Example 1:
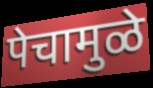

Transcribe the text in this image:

पेचामुळे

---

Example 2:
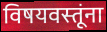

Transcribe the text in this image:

विषयवस्तूंना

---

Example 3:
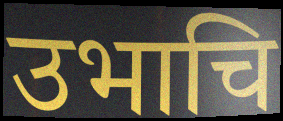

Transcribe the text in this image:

उभाचि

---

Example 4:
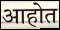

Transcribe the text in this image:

आहोत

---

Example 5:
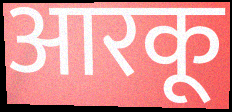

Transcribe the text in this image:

आरकू